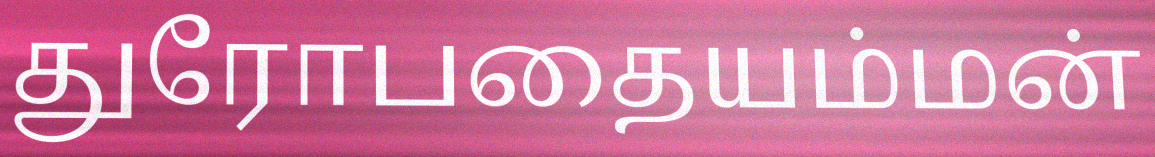
துரோபதையம்மன்